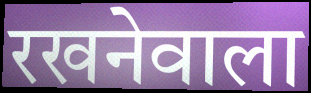
रखनेवाला